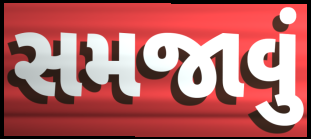
સમજાવું